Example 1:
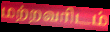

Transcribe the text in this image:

மற்றவரிடம்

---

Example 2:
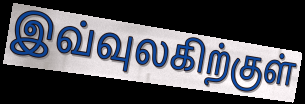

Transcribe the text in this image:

இவ்வுலகிற்குள்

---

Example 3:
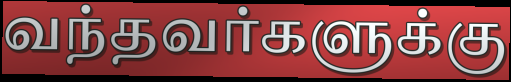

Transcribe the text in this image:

வந்தவர்களுக்கு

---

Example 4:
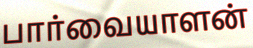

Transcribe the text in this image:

பார்வையாளன்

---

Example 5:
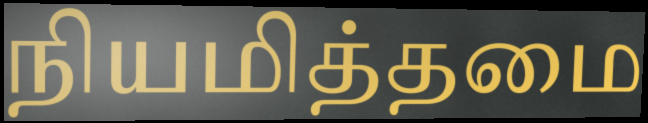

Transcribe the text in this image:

நியமித்தமை